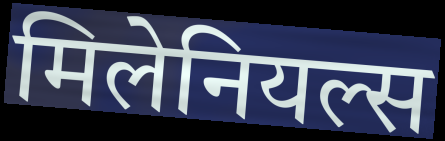
मिलेनियल्स